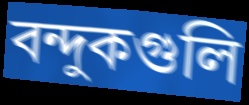
বন্দুকগুলি